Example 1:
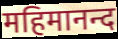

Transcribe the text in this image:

महिमानन्द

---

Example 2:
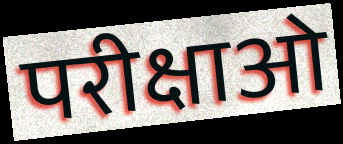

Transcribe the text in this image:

परीक्षाओ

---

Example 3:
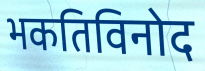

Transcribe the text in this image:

भकतिविनोद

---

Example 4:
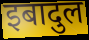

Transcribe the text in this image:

इबादुल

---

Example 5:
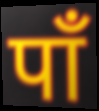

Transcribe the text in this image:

पाँ